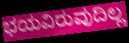
ಭಯವಿರುವುದಿಲ್ಲ